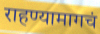
राहण्यामागचं